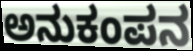
ಅನುಕಂಪನ